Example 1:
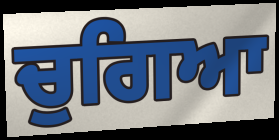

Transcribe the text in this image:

ਚੁਗਿਆ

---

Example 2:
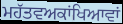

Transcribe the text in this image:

ਮਹੱਤਵਅਕਾਂਖਿਆਵਾਂ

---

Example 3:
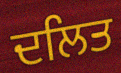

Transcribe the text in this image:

ਦਲਿਤ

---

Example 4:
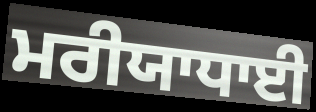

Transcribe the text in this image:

ਮਰੀਯਾਧਾਈ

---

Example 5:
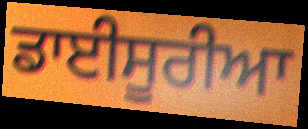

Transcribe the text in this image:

ਡਾਈਸੂਰੀਆ